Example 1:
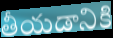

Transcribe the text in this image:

తీయడానికి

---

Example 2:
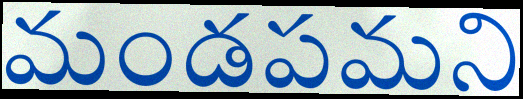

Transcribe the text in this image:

మండపమని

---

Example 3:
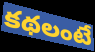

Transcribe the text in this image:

కథలంటే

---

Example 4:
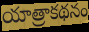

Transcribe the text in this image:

యాత్రాకథనం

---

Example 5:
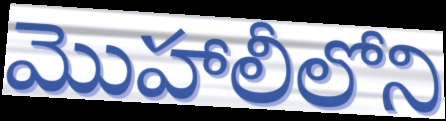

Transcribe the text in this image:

మొహాలీలోని